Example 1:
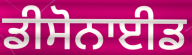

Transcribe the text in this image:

ਡੀਸੋਨਾਈਡ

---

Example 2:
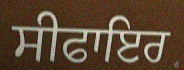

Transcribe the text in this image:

ਸੀਫਾਇਰ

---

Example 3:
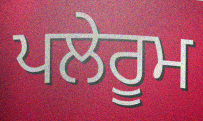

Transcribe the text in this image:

ਪਲੇਰੂਮ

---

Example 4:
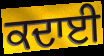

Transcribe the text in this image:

ਕਦਾਈ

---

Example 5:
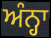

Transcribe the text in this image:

ਅੰਨ੍ਹ੍ਹਾ